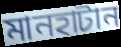
মানহাটান